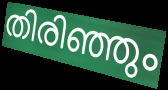
തിരിഞ്ഞും